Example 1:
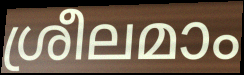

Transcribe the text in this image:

ശ്രീലമാം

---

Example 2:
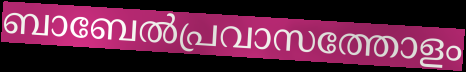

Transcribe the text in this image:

ബാബേൽപ്രവാസത്തോളം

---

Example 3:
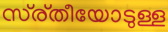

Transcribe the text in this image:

സ്ര്തീയോടുള്ള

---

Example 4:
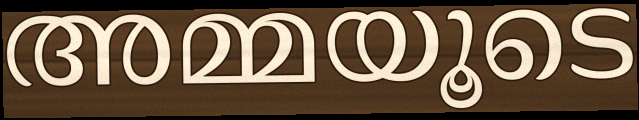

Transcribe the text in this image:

അമ്മയൂടെ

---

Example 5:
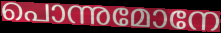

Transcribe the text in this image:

പൊന്നുമോനേ